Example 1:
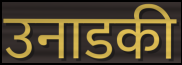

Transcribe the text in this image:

उनाडकी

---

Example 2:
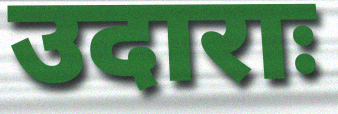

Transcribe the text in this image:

उदाराः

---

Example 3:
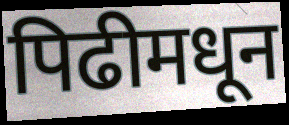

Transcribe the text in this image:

पिढीमधून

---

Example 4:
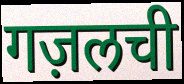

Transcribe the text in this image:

गज़लची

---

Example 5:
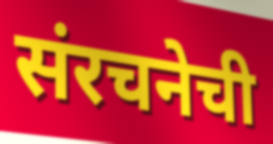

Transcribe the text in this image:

संरचनेची